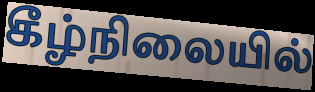
கீழ்நிலையில்